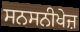
ਸਨਸਨੀਖੇਜ਼